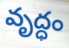
వృద్ధం